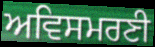
ਅਵਿਸਮਰਣੀ